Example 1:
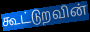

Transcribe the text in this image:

கூட்டுறவின்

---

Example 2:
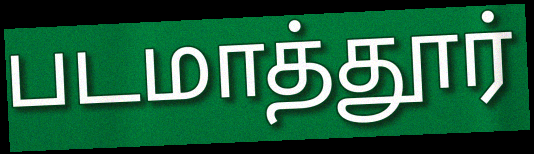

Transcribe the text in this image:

படமாத்தூர்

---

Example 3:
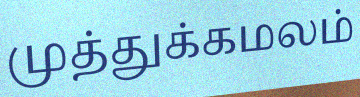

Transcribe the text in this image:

முத்துக்கமலம்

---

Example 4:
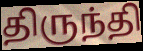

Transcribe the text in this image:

திருந்தி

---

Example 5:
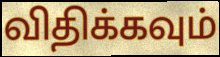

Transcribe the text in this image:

விதிக்கவும்